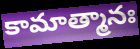
కామాత్మానః